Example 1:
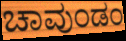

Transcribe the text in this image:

ಚಾವುಂಡಂ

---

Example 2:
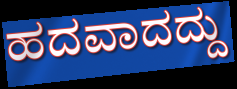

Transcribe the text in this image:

ಹದವಾದದ್ದು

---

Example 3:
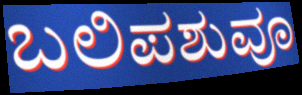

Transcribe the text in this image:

ಬಲಿಪಶುವೂ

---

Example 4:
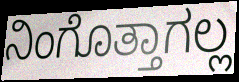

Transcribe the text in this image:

ನಿಂಗೊತ್ತಾಗಲ್ಲ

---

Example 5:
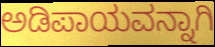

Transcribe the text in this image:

ಅಡಿಪಾಯವನ್ನಾಗಿ